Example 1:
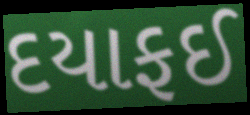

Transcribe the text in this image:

દયાફઈ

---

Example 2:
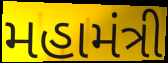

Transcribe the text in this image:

મહામંત્રી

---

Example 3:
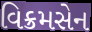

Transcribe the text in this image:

વિક્રમસેન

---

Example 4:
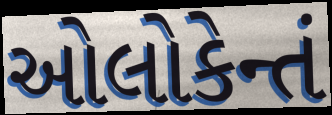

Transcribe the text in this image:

ઓલોકેન્તં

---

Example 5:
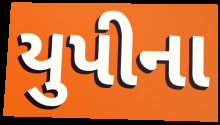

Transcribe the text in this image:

યુપીના